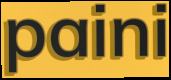
paini